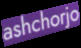
ashchorjo